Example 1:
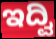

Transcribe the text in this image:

ಇದ್ವಿ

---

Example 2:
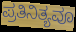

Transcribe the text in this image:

ಪ್ರತಿನಿತ್ಯವೂ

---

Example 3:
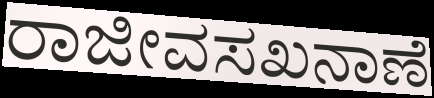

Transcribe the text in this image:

ರಾಜೀವಸಖನಾಣೆ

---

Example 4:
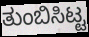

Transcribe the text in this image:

ತುಂಬಿಸಿಟ್ಟ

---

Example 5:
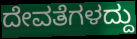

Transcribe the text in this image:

ದೇವತೆಗಳದ್ದು